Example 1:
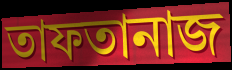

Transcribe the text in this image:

তাফতানাজ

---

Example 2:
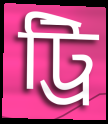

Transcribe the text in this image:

ট্রি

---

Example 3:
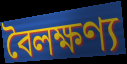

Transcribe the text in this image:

বৈলক্ষণ্য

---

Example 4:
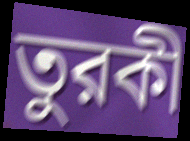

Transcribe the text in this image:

তুরকী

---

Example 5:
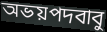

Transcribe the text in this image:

অভয়পদবাবু